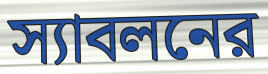
স্যাবলনের